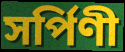
সর্পিণী